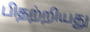
பிதற்றியது